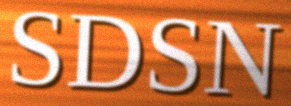
SDSN